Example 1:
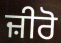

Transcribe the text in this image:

ਜ਼ੀਰੋ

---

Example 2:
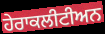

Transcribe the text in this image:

ਹੇਰਾਕਲੀਟੀਅਨ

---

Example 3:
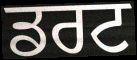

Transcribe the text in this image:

ਡਰਟ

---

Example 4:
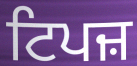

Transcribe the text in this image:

ਟਿਪਜ਼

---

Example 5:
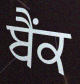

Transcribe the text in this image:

ਬੈਂਕ